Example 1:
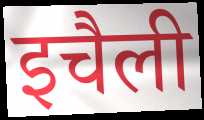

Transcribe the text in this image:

इचैली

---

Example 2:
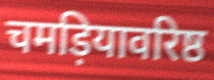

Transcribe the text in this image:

चमड़ियावरिष्ठ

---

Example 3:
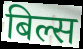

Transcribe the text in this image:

बिल्स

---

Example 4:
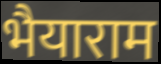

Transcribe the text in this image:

भैयाराम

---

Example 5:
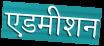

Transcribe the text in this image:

एडमीशन